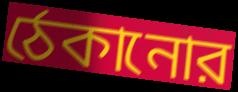
ঠেকানোর